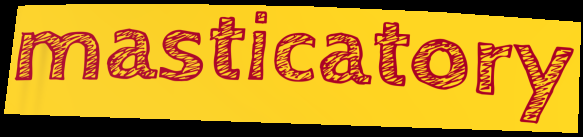
masticatory